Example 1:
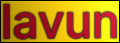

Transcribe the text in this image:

lavun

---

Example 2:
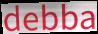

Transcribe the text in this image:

debba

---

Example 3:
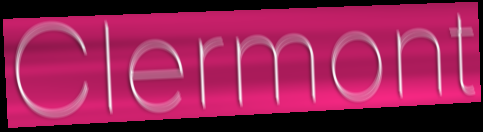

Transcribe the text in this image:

Clermont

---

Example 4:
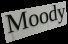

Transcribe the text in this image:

Moody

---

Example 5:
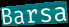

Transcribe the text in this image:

Barsa